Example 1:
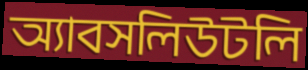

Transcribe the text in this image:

অ্যাবসলিউটলি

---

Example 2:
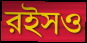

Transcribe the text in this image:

রইসও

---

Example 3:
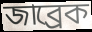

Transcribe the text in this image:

জাব্রেক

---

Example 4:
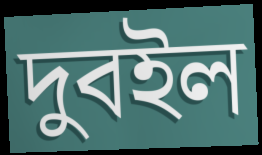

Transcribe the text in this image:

দুবইল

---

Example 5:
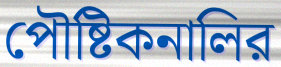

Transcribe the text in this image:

পৌষ্টিকনালির